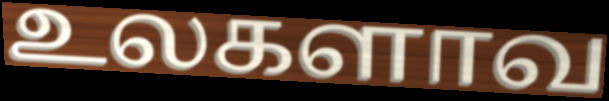
உலகளாவ